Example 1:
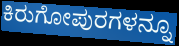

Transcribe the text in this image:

ಕಿರುಗೋಪುರಗಳನ್ನೂ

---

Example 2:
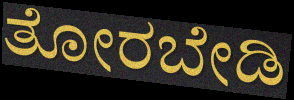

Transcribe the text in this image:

ತೋರಬೇಡಿ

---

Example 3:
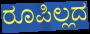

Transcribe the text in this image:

ರೂಪಿಲ್ಲದ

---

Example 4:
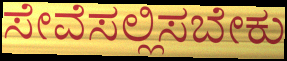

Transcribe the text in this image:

ಸೇವೆಸಲ್ಲಿಸಬೇಕು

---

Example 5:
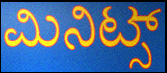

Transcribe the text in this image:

ಮಿನಿಟ್ಸ್